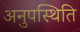
अनुपस्थिति